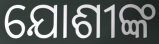
ଯୋଶୀଙ୍କ